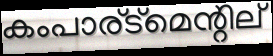
കംപാര്ട്മെന്റില്